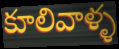
కూలివాళ్ళ